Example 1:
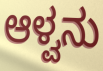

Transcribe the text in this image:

ಆಳ್ವನು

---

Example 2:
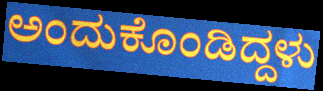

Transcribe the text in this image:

ಅಂದುಕೊಂಡಿದ್ದಳು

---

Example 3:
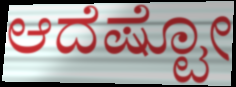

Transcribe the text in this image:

ಆದೆಷ್ಟೋ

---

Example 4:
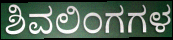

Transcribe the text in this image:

ಶಿವಲಿಂಗಗಳ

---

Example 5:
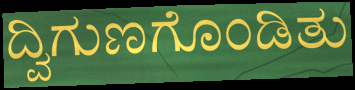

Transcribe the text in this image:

ದ್ವಿಗುಣಗೊಂಡಿತು